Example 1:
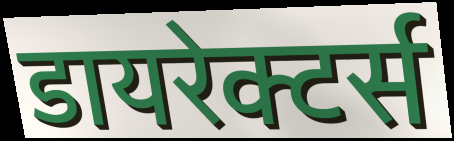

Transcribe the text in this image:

डायरेक्टर्स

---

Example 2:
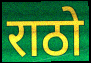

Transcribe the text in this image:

राठो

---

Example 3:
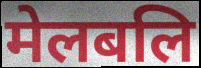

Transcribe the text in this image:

मेलबलि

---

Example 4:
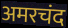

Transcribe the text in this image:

अमरचंद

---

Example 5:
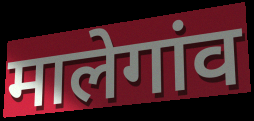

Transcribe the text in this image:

मालेगांव